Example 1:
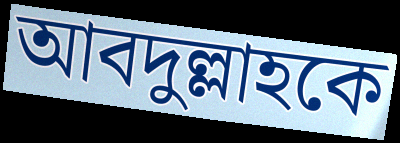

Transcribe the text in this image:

আবদুল্লাহকে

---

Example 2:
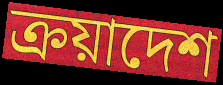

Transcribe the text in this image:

ক্রয়াদেশ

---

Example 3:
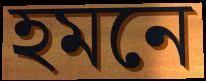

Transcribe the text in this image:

হমনে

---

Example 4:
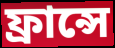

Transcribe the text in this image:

ফ্রান্সে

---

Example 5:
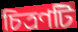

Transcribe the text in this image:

চিত্রণটি